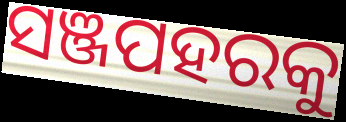
ସଞ୍ଜପହରକୁ